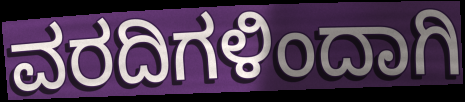
ವರದಿಗಳಿಂದಾಗಿ